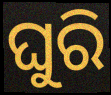
ଘୁରି